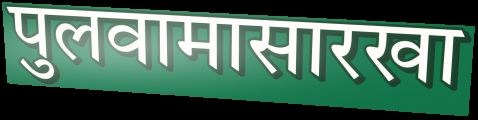
पुलवामासारखा